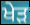
ਖੇੜ